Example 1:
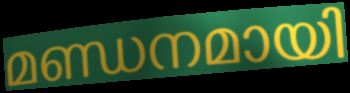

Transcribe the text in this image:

മണ്ഡനമായി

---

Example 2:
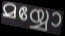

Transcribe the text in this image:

മയ്യോ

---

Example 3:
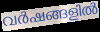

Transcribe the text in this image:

വർഷങ്ങളിൽ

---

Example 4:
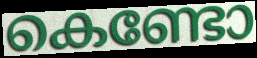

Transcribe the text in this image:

കെണ്ടോ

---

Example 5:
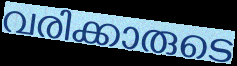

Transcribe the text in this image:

വരിക്കാരുടെ